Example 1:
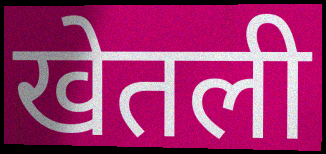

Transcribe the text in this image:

खेतली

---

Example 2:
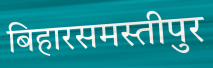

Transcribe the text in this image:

बिहारसमस्तीपुर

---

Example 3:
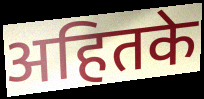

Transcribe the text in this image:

अहितके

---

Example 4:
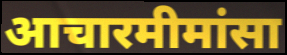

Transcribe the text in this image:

आचारमीमांसा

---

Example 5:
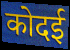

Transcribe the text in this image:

कोदई